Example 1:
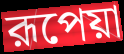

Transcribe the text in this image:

রূপেয়া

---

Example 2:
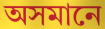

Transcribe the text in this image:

অসমানে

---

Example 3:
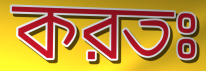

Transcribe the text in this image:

করতঃ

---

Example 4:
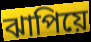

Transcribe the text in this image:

ঝাপিয়ে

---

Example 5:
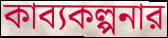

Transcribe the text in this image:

কাব্যকল্পনার